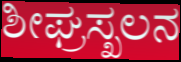
ಶೀಘ್ರಸ್ಖಲನ